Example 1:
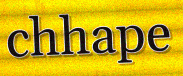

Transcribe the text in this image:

chhape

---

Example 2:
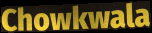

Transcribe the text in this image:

Chowkwala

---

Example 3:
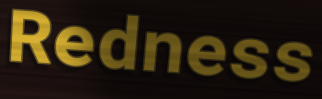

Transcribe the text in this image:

Redness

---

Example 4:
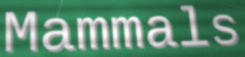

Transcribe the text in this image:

Mammals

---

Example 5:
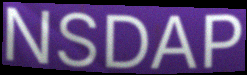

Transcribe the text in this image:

NSDAP